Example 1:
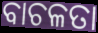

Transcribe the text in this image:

ବାଚଳତା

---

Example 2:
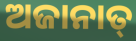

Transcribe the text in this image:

ଅଜାନାତ୍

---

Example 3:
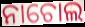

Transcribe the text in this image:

ନାଚୋଲ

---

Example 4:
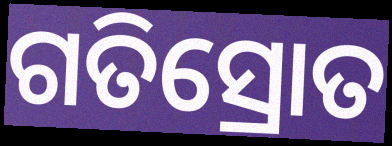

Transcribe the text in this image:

ଗତିସ୍ରୋତ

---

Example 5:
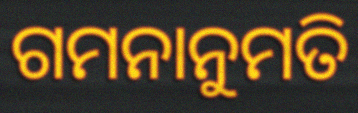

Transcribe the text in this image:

ଗମନାନୁମତି